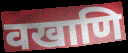
वखाणि